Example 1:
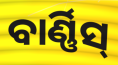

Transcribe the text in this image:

ବାର୍ଣ୍ଣିସ୍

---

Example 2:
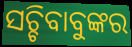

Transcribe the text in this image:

ସଚ୍ଚିବାବୁଙ୍କର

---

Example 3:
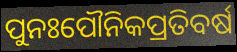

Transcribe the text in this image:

ପୁନଃପୌନିକପ୍ରତିବର୍ଷ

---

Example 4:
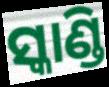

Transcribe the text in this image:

ସ୍କାଣ୍ଡି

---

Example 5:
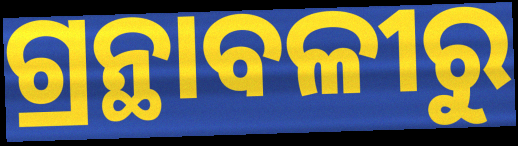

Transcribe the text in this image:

ଗ୍ରନ୍ଥାବଳୀରୁ